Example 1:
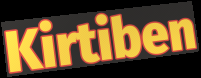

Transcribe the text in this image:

Kirtiben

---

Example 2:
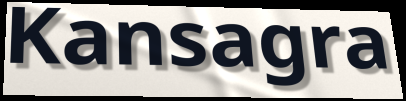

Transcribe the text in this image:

Kansagra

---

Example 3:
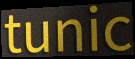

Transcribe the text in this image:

tunic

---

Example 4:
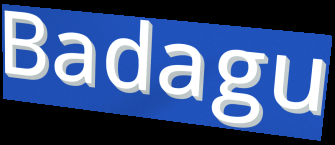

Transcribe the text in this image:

Badagu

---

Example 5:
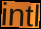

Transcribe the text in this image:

intl